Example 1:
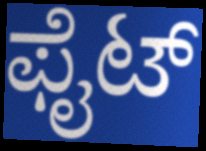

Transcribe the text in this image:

ಫೈಟ್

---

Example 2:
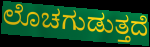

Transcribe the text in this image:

ಲೊಚಗುಡುತ್ತದೆ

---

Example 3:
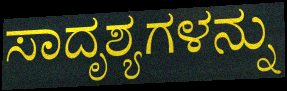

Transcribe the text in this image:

ಸಾದೃಶ್ಯಗಳನ್ನು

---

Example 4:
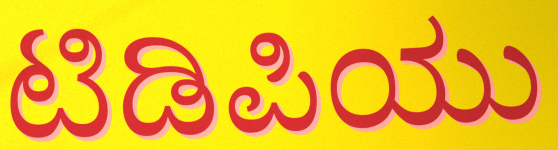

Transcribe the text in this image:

ಟಿಡಿಪಿಯು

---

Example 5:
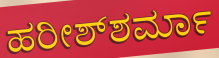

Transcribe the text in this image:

ಹರೀಶ್‌ಶರ್ಮಾ